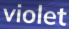
violet